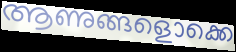
ആണുങ്ങളൊക്കെ